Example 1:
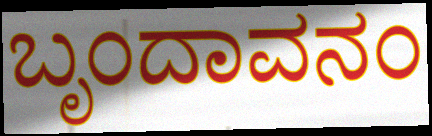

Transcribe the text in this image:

ಬೃಂದಾವನಂ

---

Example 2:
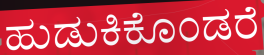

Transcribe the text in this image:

ಹುಡುಕಿಕೊಂಡರೆ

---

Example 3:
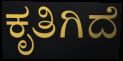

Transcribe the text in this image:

ಕೃತಿಗಿದೆ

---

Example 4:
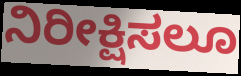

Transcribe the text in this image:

ನಿರೀಕ್ಷಿಸಲೂ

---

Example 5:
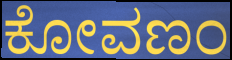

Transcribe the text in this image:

ಕೋವಣಂ